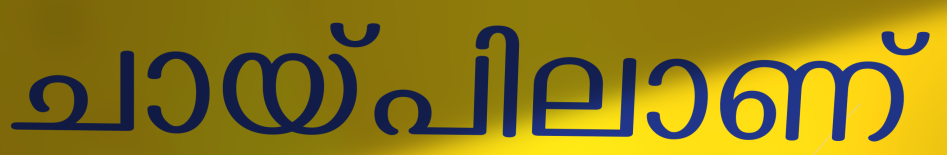
ചായ്പിലാണ്